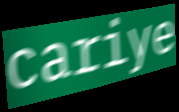
cariye